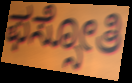
ಫಸ್ಸೋತಿ